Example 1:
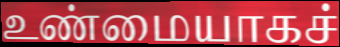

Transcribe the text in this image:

உண்மையாகச்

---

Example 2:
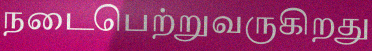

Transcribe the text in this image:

நடைபெற்றுவருகிறது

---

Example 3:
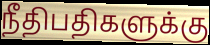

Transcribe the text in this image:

நீதிபதிகளுக்கு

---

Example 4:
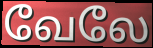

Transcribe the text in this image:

வேலே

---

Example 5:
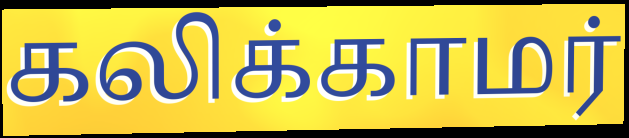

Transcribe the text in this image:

கலிக்காமர்